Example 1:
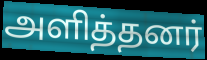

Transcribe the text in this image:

அளித்தனர்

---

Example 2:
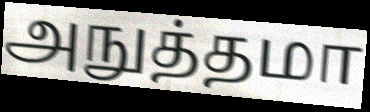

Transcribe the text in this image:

அநுத்தமா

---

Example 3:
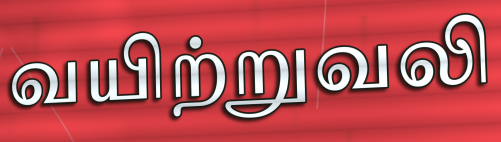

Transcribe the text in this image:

வயிற்றுவலி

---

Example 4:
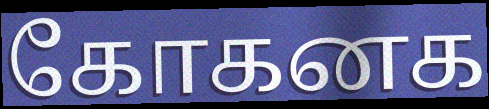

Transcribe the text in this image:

கோகனக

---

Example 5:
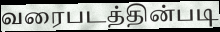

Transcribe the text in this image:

வரைபடத்தின்படி